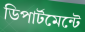
ডিপার্টমেন্টে